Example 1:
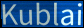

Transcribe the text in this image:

Kublai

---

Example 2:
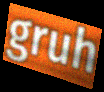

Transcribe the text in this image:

gruh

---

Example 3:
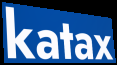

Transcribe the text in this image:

katax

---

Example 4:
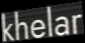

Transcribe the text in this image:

khelar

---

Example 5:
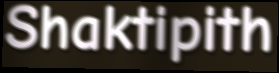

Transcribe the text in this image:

Shaktipith